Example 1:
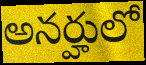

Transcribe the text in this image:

అనర్హులో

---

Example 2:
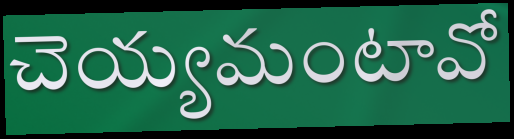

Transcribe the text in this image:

చెయ్యమంటావో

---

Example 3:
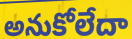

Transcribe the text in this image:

అనుకోలేదా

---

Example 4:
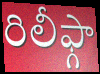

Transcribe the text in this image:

రిలీఫ్గా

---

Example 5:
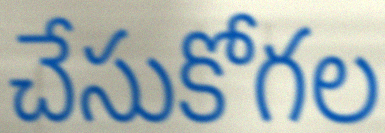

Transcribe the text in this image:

చేసుకోగల